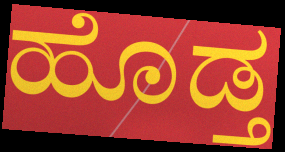
ಹೊಡ್ತ